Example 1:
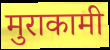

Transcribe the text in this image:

मुराकामी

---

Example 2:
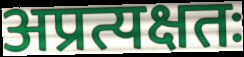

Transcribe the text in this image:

अप्रत्यक्षतः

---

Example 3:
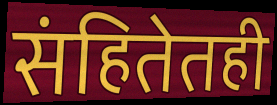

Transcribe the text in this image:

संहितेतही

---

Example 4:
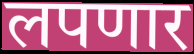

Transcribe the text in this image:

लपणार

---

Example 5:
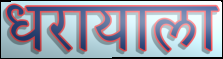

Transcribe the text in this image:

धरायाला